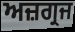
ਅਜ਼ਗ੍ਰਜ